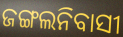
ଜଙ୍ଗଲନିବାସୀ